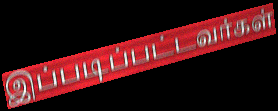
இப்படிப்பட்டவர்கள்